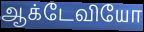
ஆக்டேவியோ